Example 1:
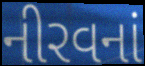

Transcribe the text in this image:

નીરવનાં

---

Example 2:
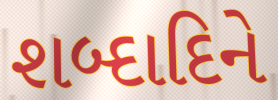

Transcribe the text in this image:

શબ્દાદિને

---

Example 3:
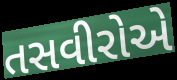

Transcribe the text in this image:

તસવીરોએ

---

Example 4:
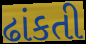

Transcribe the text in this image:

ઢાંકતી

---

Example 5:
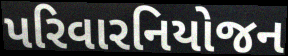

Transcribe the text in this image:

પરિવારનિયોજન